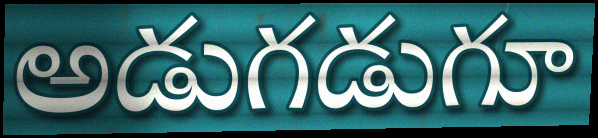
అడుగడుగూ